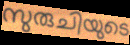
സുരുചിയുടെ